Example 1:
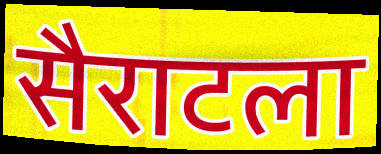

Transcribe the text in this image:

सैराटला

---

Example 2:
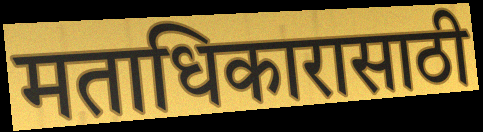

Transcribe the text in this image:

मताधिकारासाठी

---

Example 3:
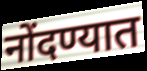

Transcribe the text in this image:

नोंदण्यात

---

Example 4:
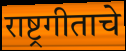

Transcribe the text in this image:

राष्ट्रगीताचे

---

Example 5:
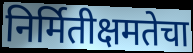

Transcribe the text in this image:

निर्मितीक्षमतेचा